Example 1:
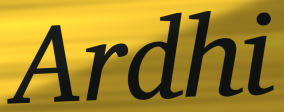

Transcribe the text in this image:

Ardhi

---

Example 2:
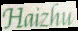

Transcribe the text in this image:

Haizhu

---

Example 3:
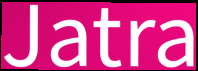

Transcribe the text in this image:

Jatra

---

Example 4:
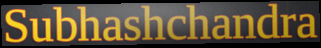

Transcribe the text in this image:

Subhashchandra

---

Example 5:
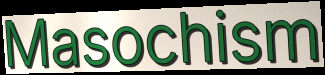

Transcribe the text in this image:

Masochism